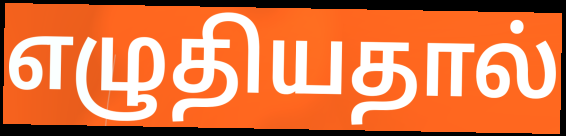
எழுதியதால்